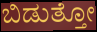
ಬಿಡುತ್ತೋ